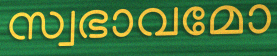
സ്വഭാവമോ